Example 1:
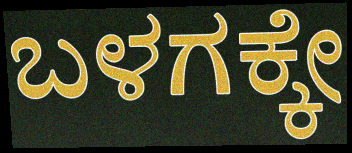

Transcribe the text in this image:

ಬಳಗಕ್ಕೇ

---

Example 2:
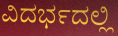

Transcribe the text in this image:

ವಿದರ್ಭದಲ್ಲಿ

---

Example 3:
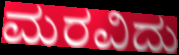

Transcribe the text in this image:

ಮರವಿದು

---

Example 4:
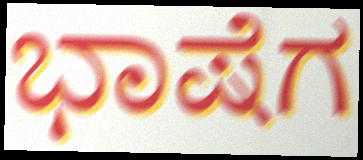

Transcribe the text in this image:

ಭಾಷೆಗ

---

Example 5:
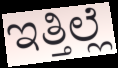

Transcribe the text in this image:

ಇತ್ತಿಲ್ಲೆ